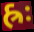
હ્રઃ